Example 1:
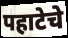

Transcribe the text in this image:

पहाटेचे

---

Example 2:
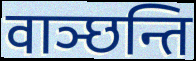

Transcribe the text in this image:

वाञ्छन्ति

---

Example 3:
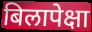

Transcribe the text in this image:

बिलापेक्षा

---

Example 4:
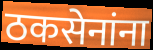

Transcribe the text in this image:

ठकसेनांना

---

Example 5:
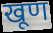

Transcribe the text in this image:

खूण